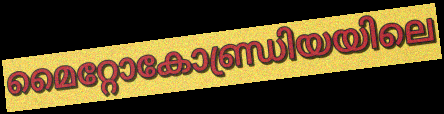
മൈറ്റോകോണ്ഡ്രിയയിലെ